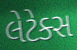
લેટેક્સ